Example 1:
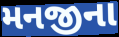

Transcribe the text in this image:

મનજીના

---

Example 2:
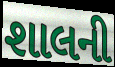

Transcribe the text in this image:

શાલની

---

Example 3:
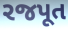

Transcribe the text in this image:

રજપૂત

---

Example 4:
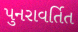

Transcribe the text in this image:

પુનરાવર્તિત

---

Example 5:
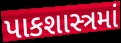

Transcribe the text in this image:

પાકશાસ્ત્રમાં